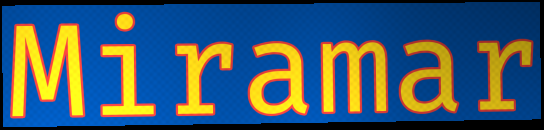
Miramar